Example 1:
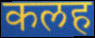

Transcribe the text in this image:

कलह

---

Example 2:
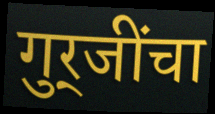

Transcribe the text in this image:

गुर्जींचा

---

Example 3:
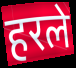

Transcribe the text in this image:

हरले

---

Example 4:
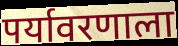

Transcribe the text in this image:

पर्यावरणाला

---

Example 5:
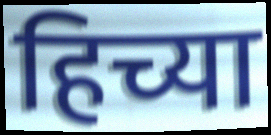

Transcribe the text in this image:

हिच्या